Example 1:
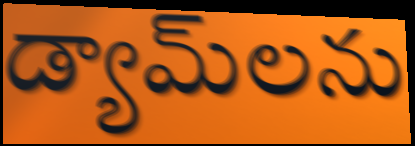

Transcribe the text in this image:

డ్యామ్‌లను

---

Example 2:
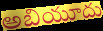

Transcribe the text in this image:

అబియూదు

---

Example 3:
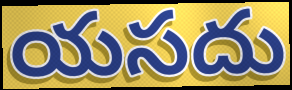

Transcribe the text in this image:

యసదు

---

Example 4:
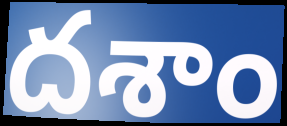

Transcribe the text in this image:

దశాం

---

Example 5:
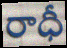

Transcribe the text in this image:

రాధీ